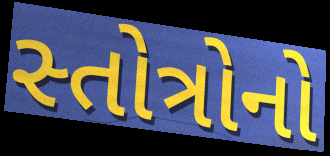
સ્તોત્રોનો